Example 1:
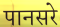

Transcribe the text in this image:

पानसरे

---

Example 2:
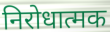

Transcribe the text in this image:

निरोधात्मक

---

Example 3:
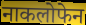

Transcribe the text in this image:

नाकलोफेन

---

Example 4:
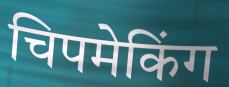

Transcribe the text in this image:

चिपमेकिंग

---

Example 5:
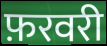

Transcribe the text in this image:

फ़रवरी